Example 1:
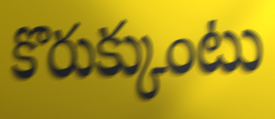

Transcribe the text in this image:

కొరుక్కుంటు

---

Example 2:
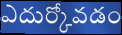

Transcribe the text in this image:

ఎదుర్కోవడం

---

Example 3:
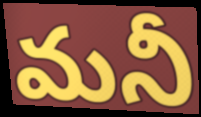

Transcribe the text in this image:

మనీ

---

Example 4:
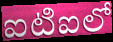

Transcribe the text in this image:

ఐటిఐలో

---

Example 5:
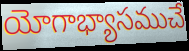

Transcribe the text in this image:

యోగాభ్యాసముచే